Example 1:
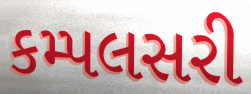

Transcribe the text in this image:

કમ્પલસરી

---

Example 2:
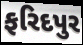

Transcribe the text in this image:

ફરિદપુર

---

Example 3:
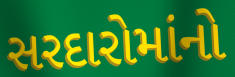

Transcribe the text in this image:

સરદારોમાંનો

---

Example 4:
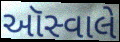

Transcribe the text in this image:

ઑસ્વાલે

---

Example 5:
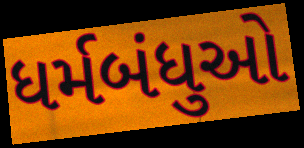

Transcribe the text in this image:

ધર્મબંધુઓ